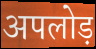
अपलोड़